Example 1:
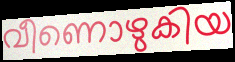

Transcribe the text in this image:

വീണൊഴുകിയ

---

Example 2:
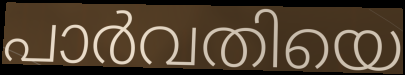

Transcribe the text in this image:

പാർവതിയെ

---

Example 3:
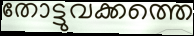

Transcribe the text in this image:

തോട്ടുവക്കത്തെ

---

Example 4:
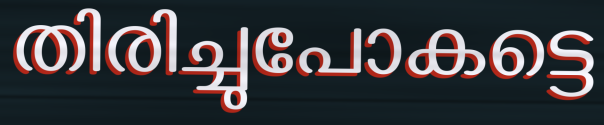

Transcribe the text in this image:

തിരിച്ചുപോകട്ടെ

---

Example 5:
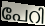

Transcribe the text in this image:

പേറി